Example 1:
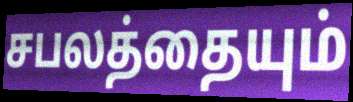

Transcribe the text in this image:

சபலத்தையும்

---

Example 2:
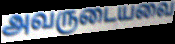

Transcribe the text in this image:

அவருடையவை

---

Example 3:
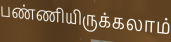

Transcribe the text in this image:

பண்ணியிருக்கலாம்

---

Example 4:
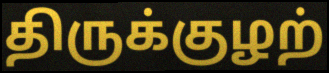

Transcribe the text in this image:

திருக்குழற்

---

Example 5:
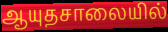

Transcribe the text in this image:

ஆயுதசாலையில்